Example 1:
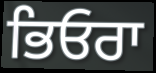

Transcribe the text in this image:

ਭਿਓਰਾ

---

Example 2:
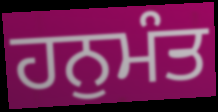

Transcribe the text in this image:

ਹਨੁਮੰਤ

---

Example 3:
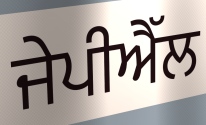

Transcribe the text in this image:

ਜੇਪੀਐੱਲ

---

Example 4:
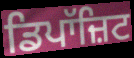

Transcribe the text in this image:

ਡਿਪਾੱਜ਼ਿਟ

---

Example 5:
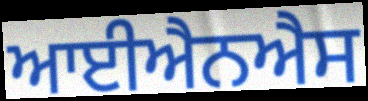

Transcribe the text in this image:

ਆਈਐਨਐਸ